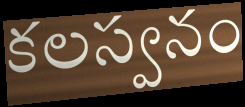
కలస్వనం